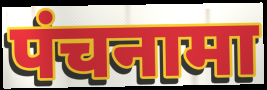
पंचनामा